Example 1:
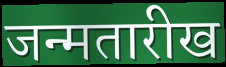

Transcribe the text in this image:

जन्मतारीख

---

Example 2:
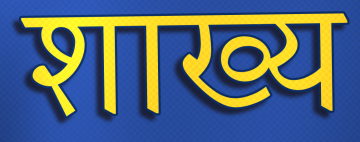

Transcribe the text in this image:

शाख्य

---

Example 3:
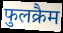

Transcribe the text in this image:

फुलक्रैम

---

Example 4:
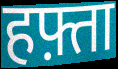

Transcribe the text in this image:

हफ़्ता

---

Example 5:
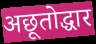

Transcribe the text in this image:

अछूतोद्धार